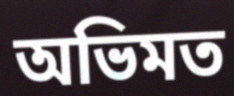
অভিমত